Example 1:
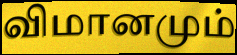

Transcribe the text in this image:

விமானமும்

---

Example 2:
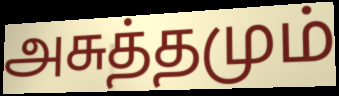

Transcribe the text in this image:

அசுத்தமும்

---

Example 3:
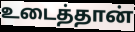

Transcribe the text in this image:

உடைத்தான்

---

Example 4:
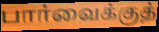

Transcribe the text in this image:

பார்வைக்குத்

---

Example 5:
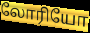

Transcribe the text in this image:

லோரியோ